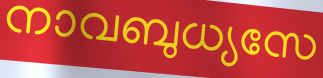
നാവബുധ്യസേ